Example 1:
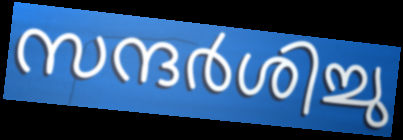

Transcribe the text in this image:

സന്ദർശിച്ചു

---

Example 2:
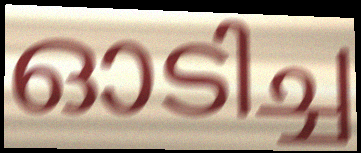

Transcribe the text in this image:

ഓടിച്ച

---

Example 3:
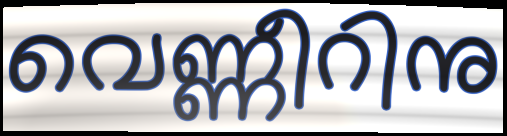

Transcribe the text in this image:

വെണ്ണീറിനു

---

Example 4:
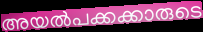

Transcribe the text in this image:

അയൽപക്കക്കാരുടെ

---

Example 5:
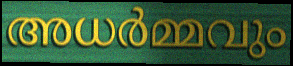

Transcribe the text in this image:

അധർമ്മവും